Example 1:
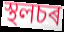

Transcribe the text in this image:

স্থলচৰ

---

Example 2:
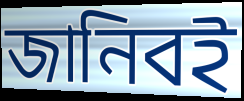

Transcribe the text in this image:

জানিবই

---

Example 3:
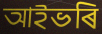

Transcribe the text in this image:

আইভৰি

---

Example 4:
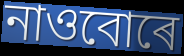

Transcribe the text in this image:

নাওবোৰে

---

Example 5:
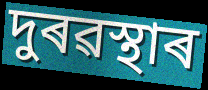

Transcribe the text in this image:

দুৰৱস্থাৰ